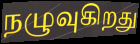
நழுவுகிறது